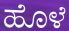
ಹೊಳೆ